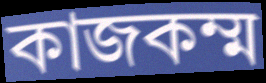
কাজকম্ম